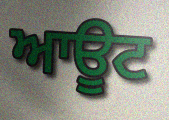
ਆਊਟ